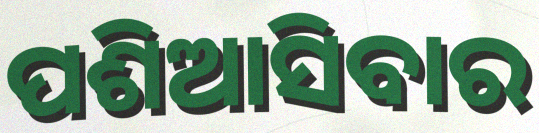
ପଶିଆସିବାର